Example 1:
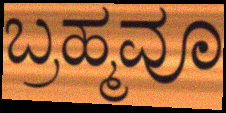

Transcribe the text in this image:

ಬ್ರಹ್ಮವೂ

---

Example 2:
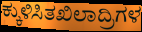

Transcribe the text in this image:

ಕ್ಕುಳಿಸಿತಖಿಲಾದ್ರಿಗಳ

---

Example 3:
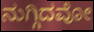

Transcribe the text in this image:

ನುಗ್ಗಿದವೋ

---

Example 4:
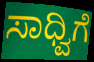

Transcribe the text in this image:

ಸಾಧ್ವಿಗೆ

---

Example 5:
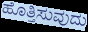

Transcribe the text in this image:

ಹೊತ್ತಿಸುವುದು